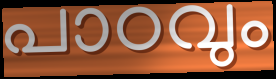
പാഠവും